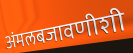
अंमलबजावणीशी